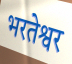
भरतेश्वर